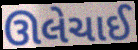
ઊલેચાઈ